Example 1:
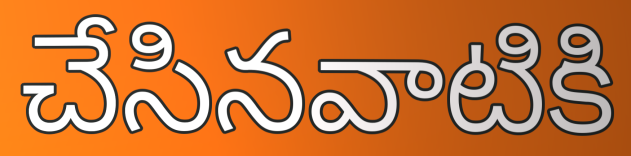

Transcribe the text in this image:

చేసినవాటికి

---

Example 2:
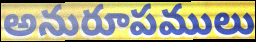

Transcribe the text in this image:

అనురూపములు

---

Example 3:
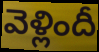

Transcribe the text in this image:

వెళ్లిందీ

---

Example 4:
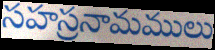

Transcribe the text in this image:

సహస్రనామములు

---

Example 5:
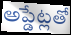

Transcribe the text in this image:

అప్డేట్లతో